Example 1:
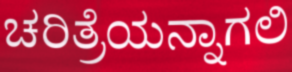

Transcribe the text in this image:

ಚರಿತ್ರೆಯನ್ನಾಗಲಿ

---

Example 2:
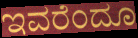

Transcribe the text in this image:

ಇವರೆಂದೂ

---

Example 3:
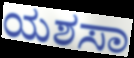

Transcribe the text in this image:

ಯಶಸಾ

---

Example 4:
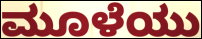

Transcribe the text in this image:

ಮೂಳೆಯು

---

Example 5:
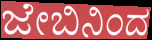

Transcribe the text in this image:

ಜೇಬಿನಿಂದ